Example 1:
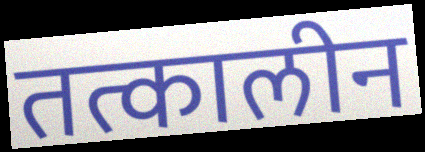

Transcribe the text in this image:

तत्कालीन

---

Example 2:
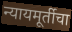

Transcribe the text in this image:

न्यायमूर्तीचा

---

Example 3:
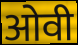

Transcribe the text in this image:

ओवी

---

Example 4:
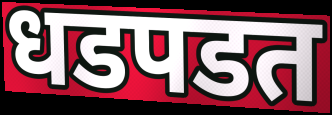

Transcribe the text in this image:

धडपडत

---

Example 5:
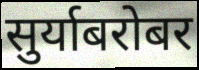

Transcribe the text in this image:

सुर्याबरोबर